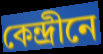
কেন্দ্রীনে